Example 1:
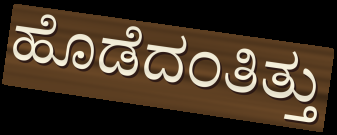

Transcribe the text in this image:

ಹೊಡೆದಂತಿತ್ತು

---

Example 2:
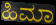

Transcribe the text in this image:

ಹಿಮಾ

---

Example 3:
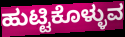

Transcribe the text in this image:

ಹುಟ್ಟಿಕೊಳ್ಳುವ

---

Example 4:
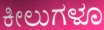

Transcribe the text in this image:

ಕೀಲುಗಳೂ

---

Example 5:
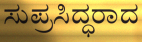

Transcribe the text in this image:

ಸುಪ್ರಸಿದ್ಧರಾದ